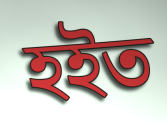
হইত